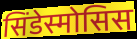
सिंडेस्मोसिस